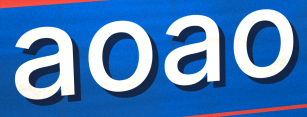
aoao